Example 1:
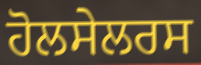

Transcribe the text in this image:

ਹੋਲਸੇਲਰਸ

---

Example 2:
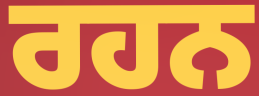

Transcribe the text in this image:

ਰਹਨ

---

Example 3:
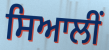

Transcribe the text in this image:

ਸਿਆਲੀਂ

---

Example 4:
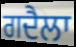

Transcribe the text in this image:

ਗਦੈਲਾ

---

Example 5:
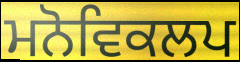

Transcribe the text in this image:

ਮਨੋਵਿਕਲਪ